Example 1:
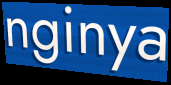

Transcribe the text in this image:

nginya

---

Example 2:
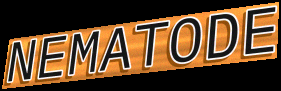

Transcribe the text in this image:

NEMATODE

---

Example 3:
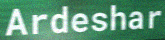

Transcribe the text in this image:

Ardeshar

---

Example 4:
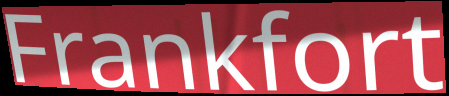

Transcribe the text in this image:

Frankfort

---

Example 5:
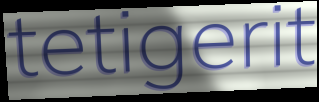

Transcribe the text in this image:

tetigerit